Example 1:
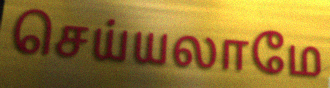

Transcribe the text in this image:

செய்யலாமே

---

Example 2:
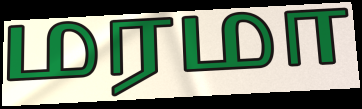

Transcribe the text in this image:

மரமா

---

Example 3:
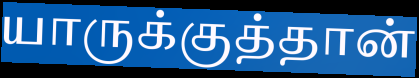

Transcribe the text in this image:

யாருக்குத்தான்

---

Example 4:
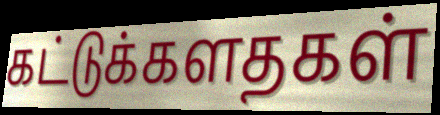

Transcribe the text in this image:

கட்டுக்களதகள்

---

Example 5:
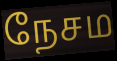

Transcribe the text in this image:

நேசம